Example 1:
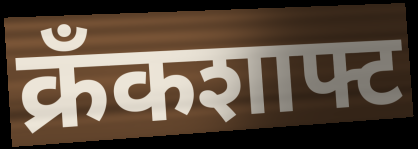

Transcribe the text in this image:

क्रँकशाफ्ट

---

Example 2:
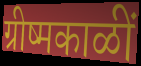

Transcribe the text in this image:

ग्रीष्मकाळीं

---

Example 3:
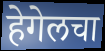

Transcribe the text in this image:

हेगेलचा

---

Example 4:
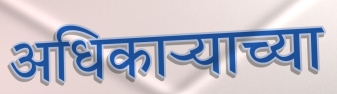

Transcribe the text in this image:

अधिकाऱ्याच्या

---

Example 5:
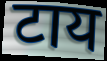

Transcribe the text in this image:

टाय